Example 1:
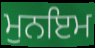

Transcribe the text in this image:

ਮੁਨਇਮ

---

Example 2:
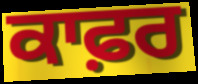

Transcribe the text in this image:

ਕਾਫ਼ਰ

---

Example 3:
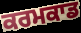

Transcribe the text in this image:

ਕਰਮਕਾਡ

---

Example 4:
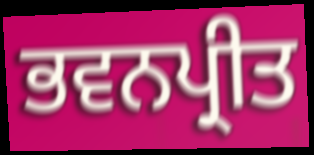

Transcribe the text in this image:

ਭਵਨਪ੍ਰੀਤ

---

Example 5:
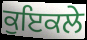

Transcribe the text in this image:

ਕੁਇਕਲੇ